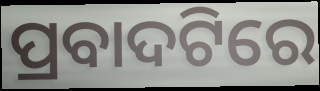
ପ୍ରବାଦଟିରେ